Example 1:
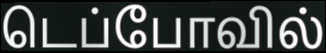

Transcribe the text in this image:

டெப்போவில்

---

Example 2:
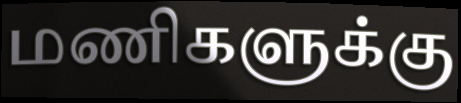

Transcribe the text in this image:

மணிகளுக்கு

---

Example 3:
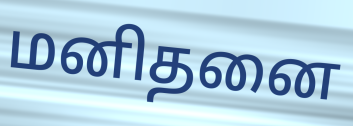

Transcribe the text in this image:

மனிதனை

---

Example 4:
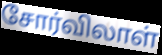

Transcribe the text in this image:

சோர்விலாள்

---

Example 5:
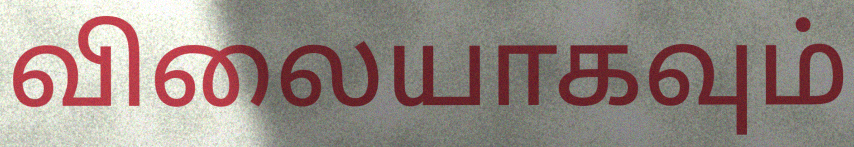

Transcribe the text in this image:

விலையாகவும்